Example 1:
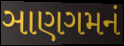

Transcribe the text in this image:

ઞાણગમનં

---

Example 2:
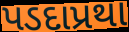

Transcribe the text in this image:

પડદાપ્રથા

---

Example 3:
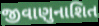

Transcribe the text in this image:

જીવાણુનાશિત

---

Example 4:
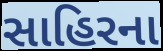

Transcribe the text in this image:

સાહિરના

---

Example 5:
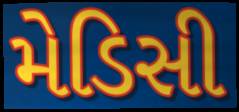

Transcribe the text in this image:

મેડિસી